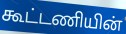
கூட்டணியின்